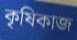
কৃষিকাজ